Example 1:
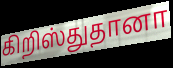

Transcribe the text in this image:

கிறிஸ்துதானா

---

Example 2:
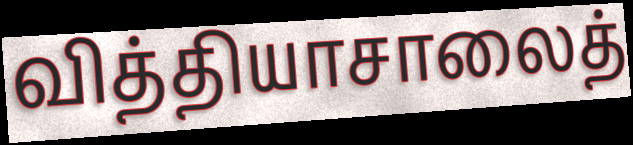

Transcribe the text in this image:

வித்தியாசாலைத்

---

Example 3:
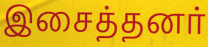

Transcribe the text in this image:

இசைத்தனர்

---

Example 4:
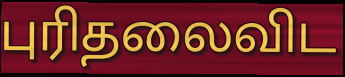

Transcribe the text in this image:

புரிதலைவிட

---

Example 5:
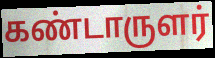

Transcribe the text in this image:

கண்டாருளர்